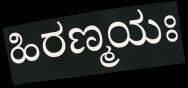
ಹಿರಣ್ಮಯಃ